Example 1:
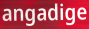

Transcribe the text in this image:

angadige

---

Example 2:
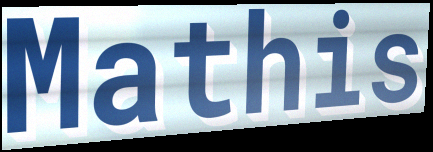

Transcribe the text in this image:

Mathis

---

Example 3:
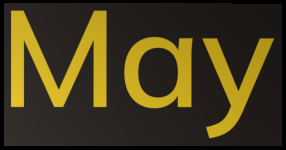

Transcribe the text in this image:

May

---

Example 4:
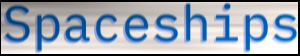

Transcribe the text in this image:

Spaceships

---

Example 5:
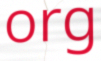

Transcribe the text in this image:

org